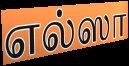
எல்ஸா